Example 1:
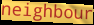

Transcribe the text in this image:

neighbour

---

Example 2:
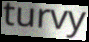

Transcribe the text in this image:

turvy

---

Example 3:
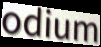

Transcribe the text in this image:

odium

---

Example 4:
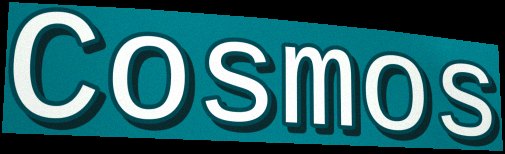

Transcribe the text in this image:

Cosmos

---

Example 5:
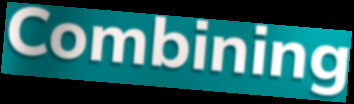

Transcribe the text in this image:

Combining